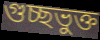
গুচ্ছভুক্ত